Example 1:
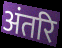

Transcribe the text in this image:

अंतरि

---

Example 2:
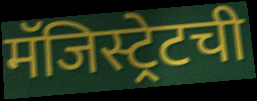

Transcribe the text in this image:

मॅजिस्ट्रेटची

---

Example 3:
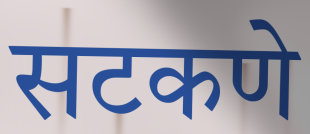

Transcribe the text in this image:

सटकणे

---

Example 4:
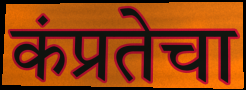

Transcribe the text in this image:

कंप्रतेचा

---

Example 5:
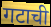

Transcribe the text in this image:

गटाची